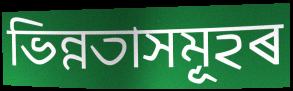
ভিন্নতাসমূহৰ